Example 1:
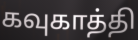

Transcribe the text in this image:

கவுகாத்தி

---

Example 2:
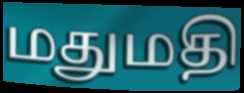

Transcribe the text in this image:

மதுமதி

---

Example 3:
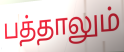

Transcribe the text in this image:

பத்தாலும்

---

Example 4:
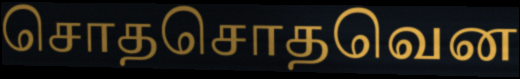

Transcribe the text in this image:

சொதசொதவென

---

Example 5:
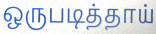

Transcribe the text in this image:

ஒருபடித்தாய்